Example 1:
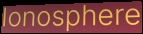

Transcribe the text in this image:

Ionosphere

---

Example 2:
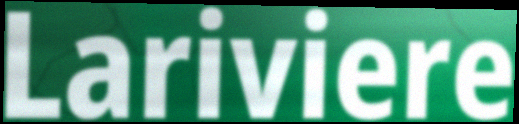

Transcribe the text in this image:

Lariviere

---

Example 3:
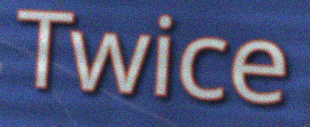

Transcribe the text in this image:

Twice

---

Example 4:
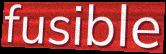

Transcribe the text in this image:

fusible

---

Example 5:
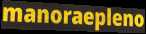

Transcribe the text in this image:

manoraepleno